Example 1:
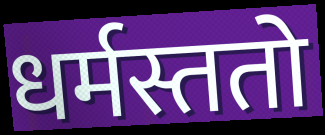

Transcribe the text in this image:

धर्मस्ततो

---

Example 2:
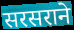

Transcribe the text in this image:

सरसराने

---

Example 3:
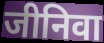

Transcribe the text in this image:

जीनिवा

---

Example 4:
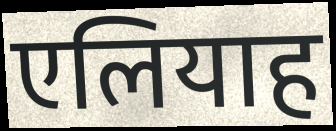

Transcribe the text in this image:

एलियाह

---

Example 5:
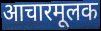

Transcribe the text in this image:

आचारमूलक